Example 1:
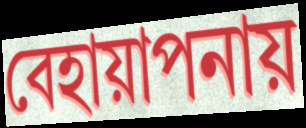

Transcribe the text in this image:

বেহায়াপনায়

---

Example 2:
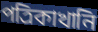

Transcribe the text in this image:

পত্রিকাখানি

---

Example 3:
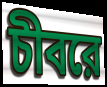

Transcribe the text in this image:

চীবরে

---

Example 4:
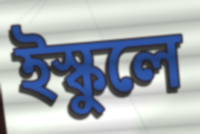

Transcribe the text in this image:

ইস্কুলে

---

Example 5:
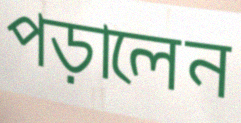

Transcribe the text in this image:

পড়ালেন